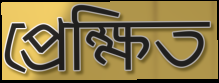
প্রেক্ষিত